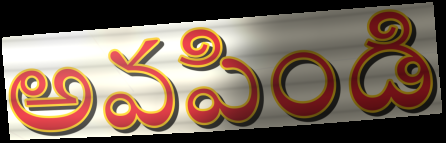
అవపిండి